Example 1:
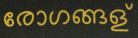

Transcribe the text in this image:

രോഗങ്ങള്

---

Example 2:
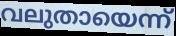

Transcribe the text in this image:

വലുതായെന്ന്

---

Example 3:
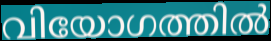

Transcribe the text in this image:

വിയോഗത്തിൽ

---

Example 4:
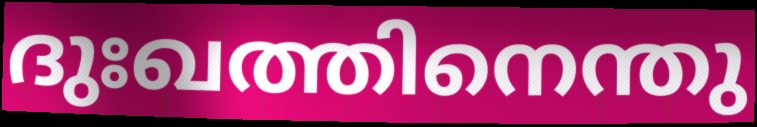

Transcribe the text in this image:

ദുഃഖത്തിനെന്തു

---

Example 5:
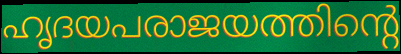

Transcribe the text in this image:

ഹൃദയപരാജയത്തിന്റെ